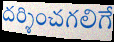
దర్శించగలిగే